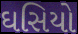
ઘસિયો